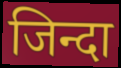
जिन्दा